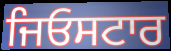
ਜਿਓਸਟਾਰ